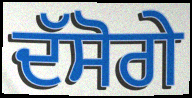
ਦੱਸੋਗੇ